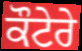
ਕੌਟੇਰੇ